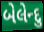
બેલેન્દુ